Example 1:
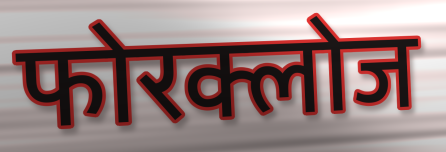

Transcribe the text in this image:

फोरक्लोज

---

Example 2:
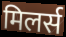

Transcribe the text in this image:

मिलर्स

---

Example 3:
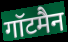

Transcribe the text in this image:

गॉटमैन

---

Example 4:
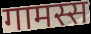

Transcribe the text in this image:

गामस्स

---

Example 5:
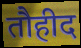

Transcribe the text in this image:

तौहीद